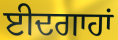
ਈਦਗਾਹਾਂ